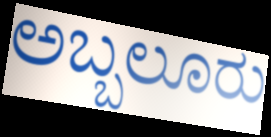
ಅಬ್ಬಲೂರು